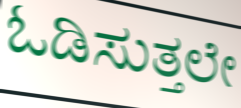
ಓಡಿಸುತ್ತಲೇ